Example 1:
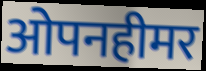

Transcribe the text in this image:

ओपनहीमर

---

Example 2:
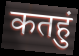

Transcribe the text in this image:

कतहुं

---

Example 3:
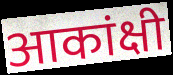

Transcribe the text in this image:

आकांक्षी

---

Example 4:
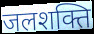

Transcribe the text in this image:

जलशक्ति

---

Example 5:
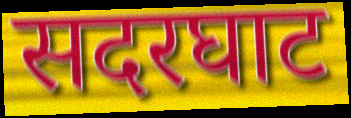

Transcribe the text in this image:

सदरघाट